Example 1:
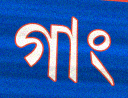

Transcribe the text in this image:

গাং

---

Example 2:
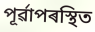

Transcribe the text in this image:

পূৰ্ৱাপৰস্থিত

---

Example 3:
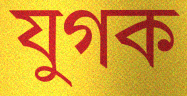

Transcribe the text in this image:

যুগক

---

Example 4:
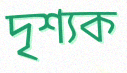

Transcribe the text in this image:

দৃশ্যক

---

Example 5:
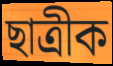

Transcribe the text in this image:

ছাত্ৰীক